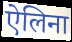
ऐलिना